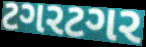
ટગરટગર